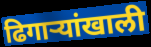
ढिगाऱ्यांखाली